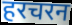
हरचरन